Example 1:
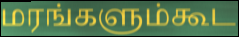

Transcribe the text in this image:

மரங்களும்கூட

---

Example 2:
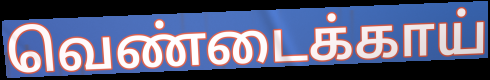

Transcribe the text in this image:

வெண்டைக்காய்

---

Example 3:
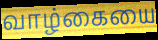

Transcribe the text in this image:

வாழ்கையை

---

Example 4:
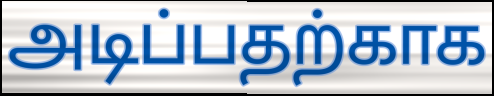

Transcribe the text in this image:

அடிப்பதற்காக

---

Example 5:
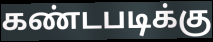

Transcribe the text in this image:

கண்டபடிக்கு